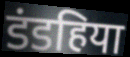
डंडहिया